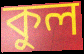
কুল